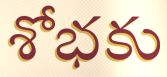
శోభకు